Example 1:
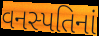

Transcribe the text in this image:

વનસ્પતિનાં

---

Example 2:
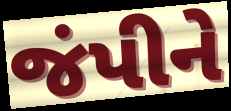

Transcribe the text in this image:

જંપીને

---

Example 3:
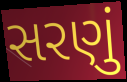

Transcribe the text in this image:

સરણું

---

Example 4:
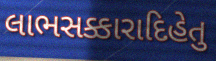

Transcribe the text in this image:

લાભસક્કારાદિહેતુ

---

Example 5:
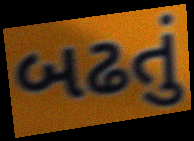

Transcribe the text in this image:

બઢતું